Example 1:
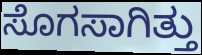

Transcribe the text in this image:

ಸೊಗಸಾಗಿತ್ತು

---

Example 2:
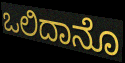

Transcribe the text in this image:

ಒಲಿದಾನೊ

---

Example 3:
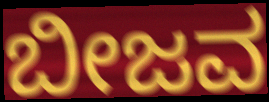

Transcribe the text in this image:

ಬೀಜವ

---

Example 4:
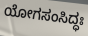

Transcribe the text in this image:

ಯೋಗಸಂಸಿದ್ಧಃ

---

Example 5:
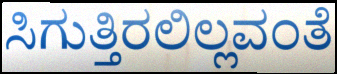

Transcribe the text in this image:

ಸಿಗುತ್ತಿರಲಿಲ್ಲವಂತೆ